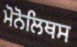
ਮੋਨੋਲਿਥਸ